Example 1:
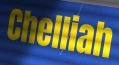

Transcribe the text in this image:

Chelliah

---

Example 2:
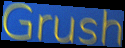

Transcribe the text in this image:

Grush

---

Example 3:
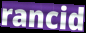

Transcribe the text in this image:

rancid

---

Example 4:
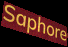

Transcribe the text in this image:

Saphore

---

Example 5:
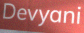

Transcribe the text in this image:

Devyani